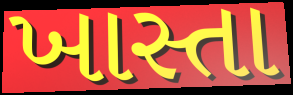
ખાસ્તા